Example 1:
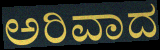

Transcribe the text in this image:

ಅರಿವಾದ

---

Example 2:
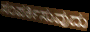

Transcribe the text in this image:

ಸಂಪರ್ಕಿಸುವುದು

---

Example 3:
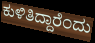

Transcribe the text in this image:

ಕುಳಿತಿದ್ದಾರೆಂದು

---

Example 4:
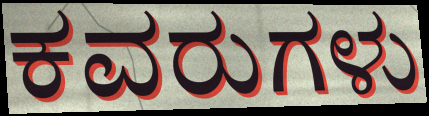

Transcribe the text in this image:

ಕವರುಗಳು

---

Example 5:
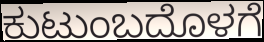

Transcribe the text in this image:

ಕುಟುಂಬದೊಳಗೆ